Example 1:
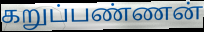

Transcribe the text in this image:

கறுப்பண்ணன்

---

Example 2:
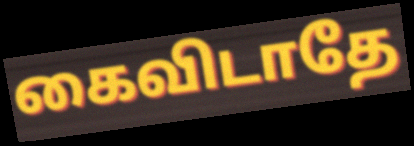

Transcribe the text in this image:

கைவிடாதே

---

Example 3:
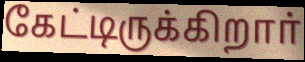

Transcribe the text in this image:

கேட்டிருக்கிறார்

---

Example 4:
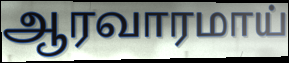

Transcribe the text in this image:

ஆரவாரமாய்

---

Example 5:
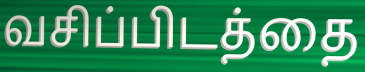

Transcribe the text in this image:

வசிப்பிடத்தை